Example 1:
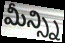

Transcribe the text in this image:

మీన్స్ని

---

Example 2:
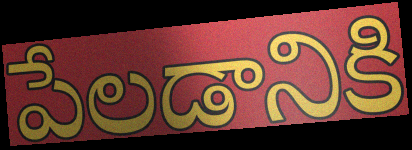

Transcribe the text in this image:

పేలడానికి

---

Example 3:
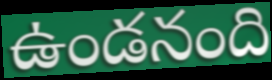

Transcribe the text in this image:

ఉండనంది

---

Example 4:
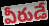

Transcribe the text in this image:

వీరుడే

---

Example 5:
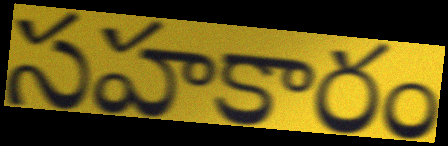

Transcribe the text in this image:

సహకారం